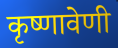
कृष्णावेणी